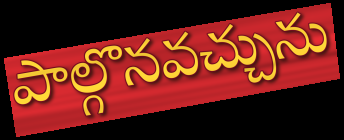
పాల్గొనవచ్చును